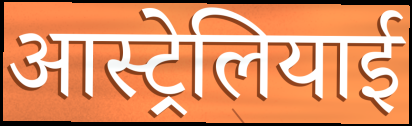
आस्ट्रेलियाई